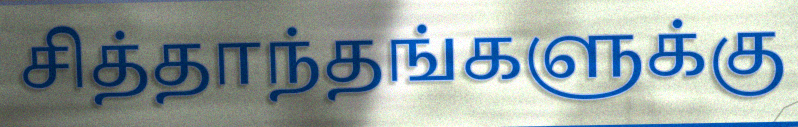
சித்தாந்தங்களுக்கு